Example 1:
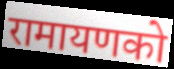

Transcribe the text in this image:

रामायणको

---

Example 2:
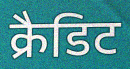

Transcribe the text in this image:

क्रैडिट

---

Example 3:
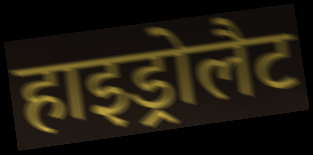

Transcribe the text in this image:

हाइड्रोलैट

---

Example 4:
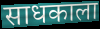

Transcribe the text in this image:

साधकाला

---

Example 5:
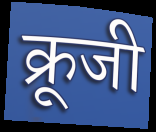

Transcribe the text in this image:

क्रूजी